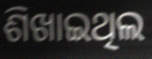
ଶିଖାଇଥିଲ